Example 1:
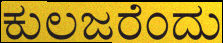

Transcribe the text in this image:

ಕುಲಜರೆಂದು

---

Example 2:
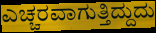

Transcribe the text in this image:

ಎಚ್ಚರವಾಗುತ್ತಿದ್ದುದು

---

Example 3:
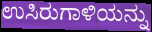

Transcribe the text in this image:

ಉಸಿರುಗಾಳಿಯನ್ನು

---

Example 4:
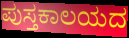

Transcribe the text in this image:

ಪುಸ್ತಕಾಲಯದ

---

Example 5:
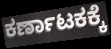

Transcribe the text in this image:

ಕರ್ಣಾಟಕಕ್ಕೆ